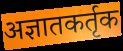
अज्ञातकर्तृक